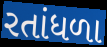
રતાંધળા